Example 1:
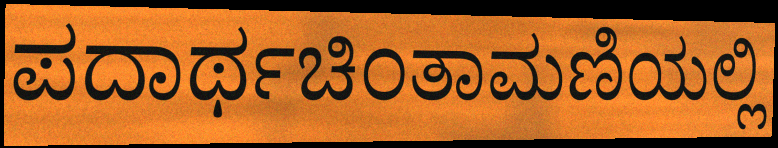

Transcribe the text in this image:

ಪದಾರ್ಥಚಿಂತಾಮಣಿಯಲ್ಲಿ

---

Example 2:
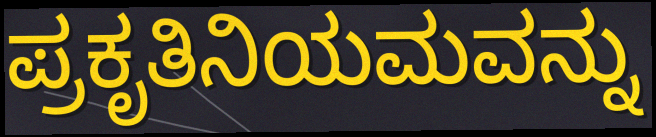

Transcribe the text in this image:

ಪ್ರಕೃತಿನಿಯಮವನ್ನು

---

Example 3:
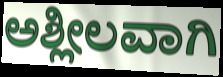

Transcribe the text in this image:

ಅಶ್ಲೀಲವಾಗಿ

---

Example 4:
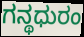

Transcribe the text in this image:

ಗನ್ಥಧುರಂ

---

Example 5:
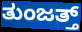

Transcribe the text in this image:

ತುಂಜತ್ತ್